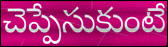
చెప్పేసుకుంటే